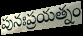
పునఃప్రయత్నం